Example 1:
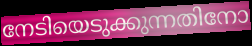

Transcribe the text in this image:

നേടിയെടുക്കുന്നതിനോ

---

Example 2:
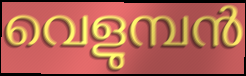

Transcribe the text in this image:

വെളുമ്പൻ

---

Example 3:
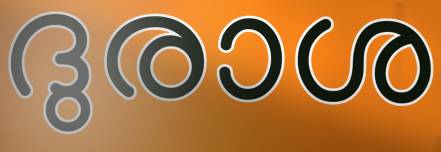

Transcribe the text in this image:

ദുരാശ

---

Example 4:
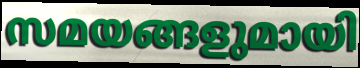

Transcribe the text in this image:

സമയങ്ങളുമായി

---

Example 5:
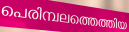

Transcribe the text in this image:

പെരിമ്പലത്തെത്തിയ